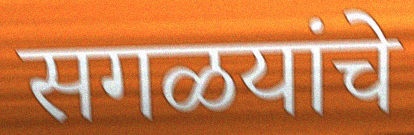
सगळयांचे